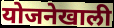
योजनेखाली